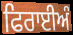
ਫਿਰਾਈਅੰ